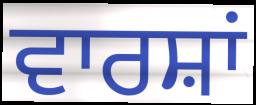
ਵਾਰਸ਼ਾਂ